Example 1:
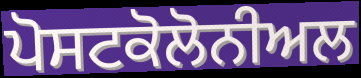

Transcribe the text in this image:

ਪੋਸਟਕੋਲੋਨੀਅਲ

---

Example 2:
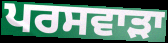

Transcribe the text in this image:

ਪਰਸਵਾੜਾ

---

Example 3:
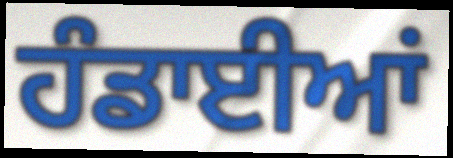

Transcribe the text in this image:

ਹੰਡਾਈਆਂ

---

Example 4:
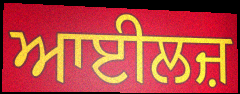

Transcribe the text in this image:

ਆਈਲਜ਼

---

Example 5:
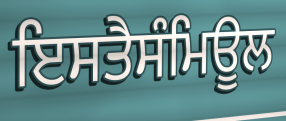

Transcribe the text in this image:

ਇਸਤੈਸੰਮਿਊਲ